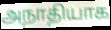
அநாதியாக